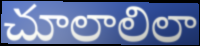
చూలాలిలా